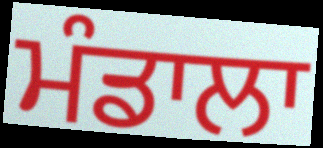
ਮੰਡਾਲਾ